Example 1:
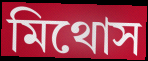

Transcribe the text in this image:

মিথোস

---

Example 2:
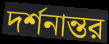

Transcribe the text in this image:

দর্শনান্তর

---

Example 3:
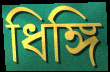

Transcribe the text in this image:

ধিঙ্গি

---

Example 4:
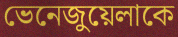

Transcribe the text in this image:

ভেনেজুয়েলাকে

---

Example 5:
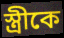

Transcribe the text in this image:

স্ত্রীকে